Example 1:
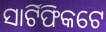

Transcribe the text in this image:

ସାର୍ଟିଫିକଟେ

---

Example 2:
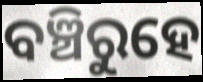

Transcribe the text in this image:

ବଞ୍ଚିରୁହେ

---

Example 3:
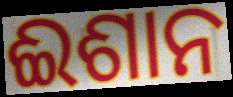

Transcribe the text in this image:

ଈଶାନ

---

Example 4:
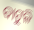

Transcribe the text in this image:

ବାଟୁଳି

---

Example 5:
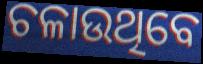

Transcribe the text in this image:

ଚଳାଉଥିବେ